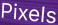
Pixels